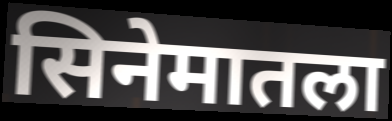
सिनेमातला